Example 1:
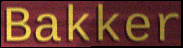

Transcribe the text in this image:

Bakker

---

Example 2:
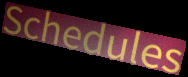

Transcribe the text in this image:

Schedules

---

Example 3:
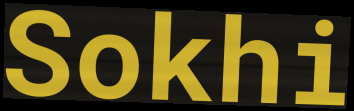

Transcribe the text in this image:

Sokhi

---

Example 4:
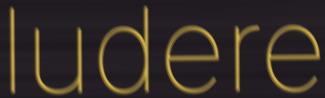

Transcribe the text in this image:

ludere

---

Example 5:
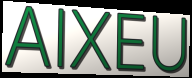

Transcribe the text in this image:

AIXEU